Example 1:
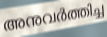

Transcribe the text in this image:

അനുവർത്തിച്ച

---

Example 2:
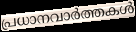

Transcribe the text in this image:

പ്രധാനവാർത്തകൾ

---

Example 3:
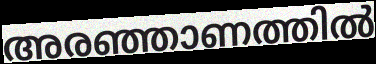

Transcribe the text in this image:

അരഞ്ഞാണത്തിൽ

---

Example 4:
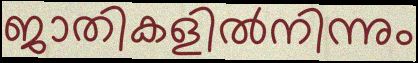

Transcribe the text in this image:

ജാതികളിൽനിന്നും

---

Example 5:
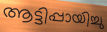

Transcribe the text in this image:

ആട്ടിപ്പായിച്ചു